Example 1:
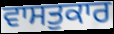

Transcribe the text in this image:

ਵਾਸਤੁਕਾਰ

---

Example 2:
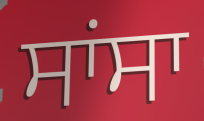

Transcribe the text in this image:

ਸਾਂਸਾ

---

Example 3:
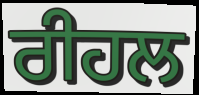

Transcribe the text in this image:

ਰੀਹਲ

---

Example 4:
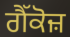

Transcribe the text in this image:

ਗੈੱਕੋਜ਼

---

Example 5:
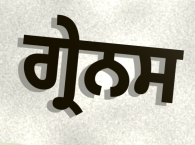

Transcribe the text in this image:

ਗ੍ਰੇਨਸ